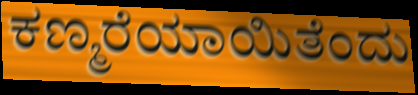
ಕಣ್ಮರೆಯಾಯಿತೆಂದು